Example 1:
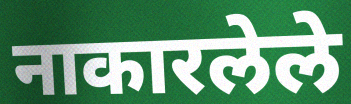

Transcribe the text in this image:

नाकारलेले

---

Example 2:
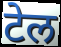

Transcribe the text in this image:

टेल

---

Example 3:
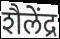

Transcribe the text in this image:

शैलेंद्र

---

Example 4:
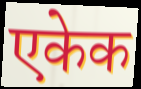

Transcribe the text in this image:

एकेक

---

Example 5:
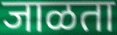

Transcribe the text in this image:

जाळता